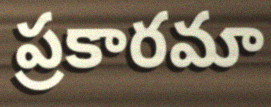
ప్రకారమా